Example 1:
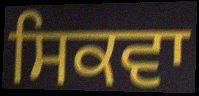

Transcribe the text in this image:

ਸਿਕਵਾ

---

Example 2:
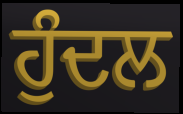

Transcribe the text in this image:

ਹੁੰਦਲ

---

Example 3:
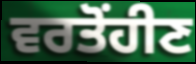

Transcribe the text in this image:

ਵਰਤੋਂਹੀਣ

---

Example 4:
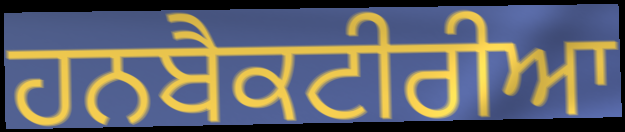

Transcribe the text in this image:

ਹਨਬੈਕਟੀਰੀਆ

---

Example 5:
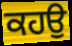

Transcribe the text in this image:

ਕਹਉ